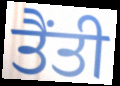
ਤੈਂਤੀ